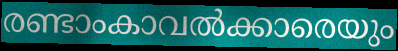
രണ്ടാംകാവൽക്കാരെയും